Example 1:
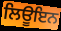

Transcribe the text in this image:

ਲਿਊਇਨ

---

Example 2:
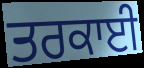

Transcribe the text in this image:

ਤਰਕਾਈ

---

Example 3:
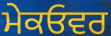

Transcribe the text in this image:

ਮੇਕਓਵਰ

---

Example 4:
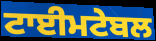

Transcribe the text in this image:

ਟਾਈਮਟੇਬਲ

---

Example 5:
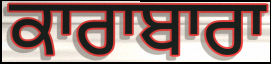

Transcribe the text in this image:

ਕਾਰਾਬਾਰਾ